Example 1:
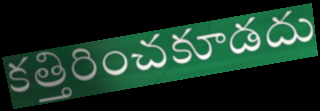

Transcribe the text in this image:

కత్తిరించకూడదు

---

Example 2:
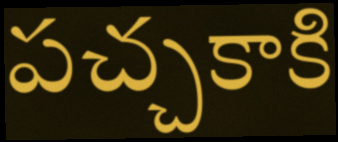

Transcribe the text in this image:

పచ్చకాకి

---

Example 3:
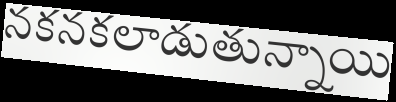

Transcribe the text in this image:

నకనకలాడుతున్నాయి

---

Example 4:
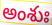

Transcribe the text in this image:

అంశుః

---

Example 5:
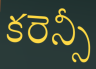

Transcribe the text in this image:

కరెన్సీ